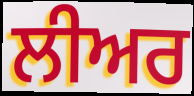
ਲੀਅਰ